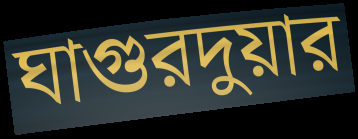
ঘাগুরদুয়ার